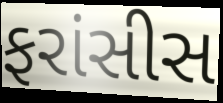
ફરાંસીસ